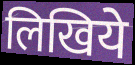
लिखिये